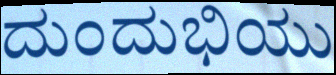
ದುಂದುಭಿಯು